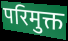
परिमुक्त